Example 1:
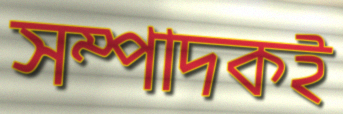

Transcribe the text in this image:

সম্পাদকই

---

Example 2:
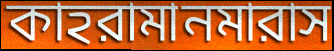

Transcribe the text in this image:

কাহরামানমারাস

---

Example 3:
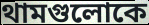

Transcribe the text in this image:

থামগুলোকে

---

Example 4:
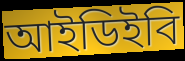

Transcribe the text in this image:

আইডিইবি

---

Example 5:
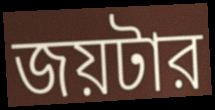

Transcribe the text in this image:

জয়টার